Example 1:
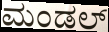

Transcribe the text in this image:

ಮಂಡಲ್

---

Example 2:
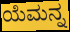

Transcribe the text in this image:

ಯೆಮನ್ನ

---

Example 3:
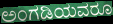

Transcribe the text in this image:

ಅಂಗಡಿಯವರೂ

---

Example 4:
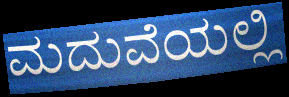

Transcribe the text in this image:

ಮದುವೆಯಲ್ಲಿ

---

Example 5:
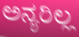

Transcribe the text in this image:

ಅನ್ಯರಿಲ್ಲ